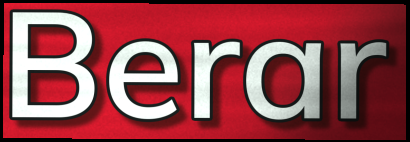
Berar